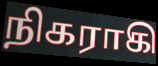
நிகராகி